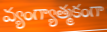
వ్యంగ్యాత్మకంగా